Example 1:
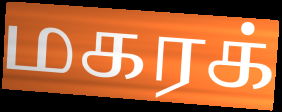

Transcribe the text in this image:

மகரக்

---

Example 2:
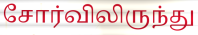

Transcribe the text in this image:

சோர்விலிருந்து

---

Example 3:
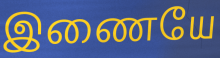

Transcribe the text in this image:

இணையே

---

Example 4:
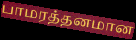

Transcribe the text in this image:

பாமரத்தனமான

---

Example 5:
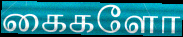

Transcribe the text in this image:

கைகளோ